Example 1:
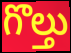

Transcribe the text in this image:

గొల్తు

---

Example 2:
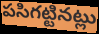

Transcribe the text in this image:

పసిగట్టినట్లు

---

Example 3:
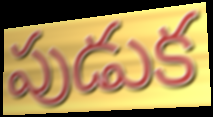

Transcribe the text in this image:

పుడుక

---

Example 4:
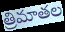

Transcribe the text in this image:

త్రిమాతల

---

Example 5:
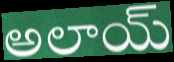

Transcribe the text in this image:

అలాయ్